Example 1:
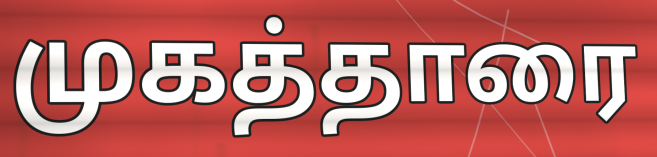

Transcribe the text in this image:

முகத்தாரை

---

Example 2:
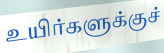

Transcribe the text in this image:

உயிர்களுக்குச்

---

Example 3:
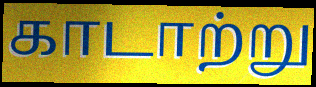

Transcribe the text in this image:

காடாற்று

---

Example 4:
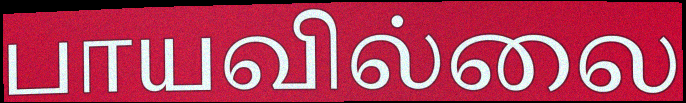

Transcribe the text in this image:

பாயவில்லை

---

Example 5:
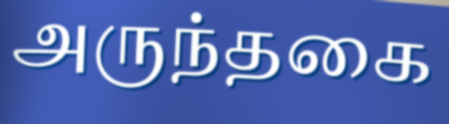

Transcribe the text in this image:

அருந்தகை